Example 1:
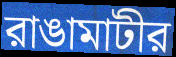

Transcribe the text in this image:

রাঙামাটীর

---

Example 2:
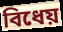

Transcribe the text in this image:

বিধেয়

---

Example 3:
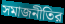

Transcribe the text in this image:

সমাজনীতির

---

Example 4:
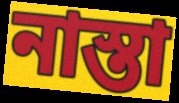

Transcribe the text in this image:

নাস্তা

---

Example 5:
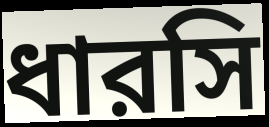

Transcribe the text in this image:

ধারসি